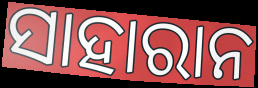
ସାହାରାନ